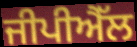
ਜੀਪੀਐੱਲ